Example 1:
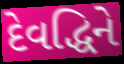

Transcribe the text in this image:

દેવદ્ધિને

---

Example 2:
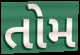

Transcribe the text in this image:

તોમ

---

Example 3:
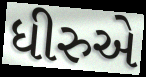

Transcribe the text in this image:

ધીરુએ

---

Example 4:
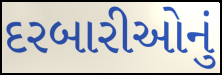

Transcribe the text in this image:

દરબારીઓનું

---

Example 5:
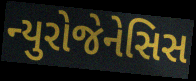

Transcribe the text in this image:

ન્યુરોજેનેસિસ